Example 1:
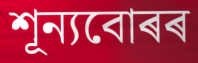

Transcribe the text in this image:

শূন্যবোৰৰ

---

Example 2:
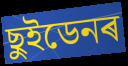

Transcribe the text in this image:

ছুইডেনৰ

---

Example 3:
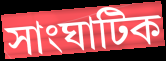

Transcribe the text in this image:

সাংঘাটিক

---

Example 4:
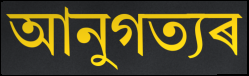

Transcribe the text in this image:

আনুগত্যৰ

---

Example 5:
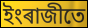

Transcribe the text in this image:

ইংৰাজীতে